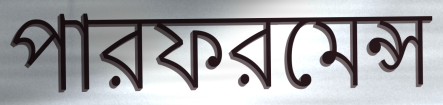
পারফরমেন্স